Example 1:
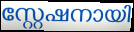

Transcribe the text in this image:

സ്റ്റേഷനായി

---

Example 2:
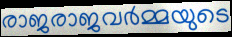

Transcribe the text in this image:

രാജരാജവർമ്മയുടെ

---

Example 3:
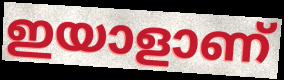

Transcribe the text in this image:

ഇയാളാണ്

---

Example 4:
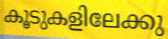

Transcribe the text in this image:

കൂടുകളിലേക്കു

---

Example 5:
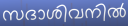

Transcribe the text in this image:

സദാശിവനിൽ